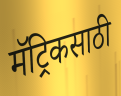
मॅट्रिकसाठी